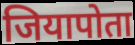
जियापोता